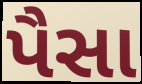
પૈસા